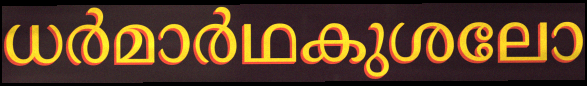
ധർമാർഥകുശലോ